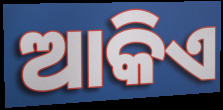
ଆକିଏ